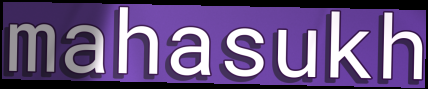
mahasukh